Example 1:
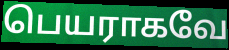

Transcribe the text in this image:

பெயராகவே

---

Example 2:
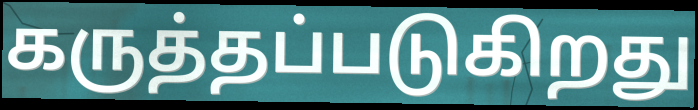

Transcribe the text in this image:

கருத்தப்படுகிறது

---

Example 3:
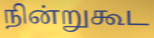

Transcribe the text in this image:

நின்றுகூட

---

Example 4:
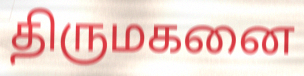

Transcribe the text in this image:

திருமகனை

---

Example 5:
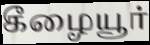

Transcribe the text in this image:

கீழையூர்